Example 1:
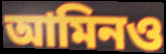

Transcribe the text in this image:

আমিনও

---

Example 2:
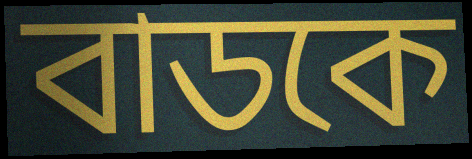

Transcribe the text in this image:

বাডকে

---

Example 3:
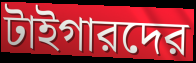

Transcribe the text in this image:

টাইগারদের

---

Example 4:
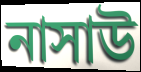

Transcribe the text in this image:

নাসাউ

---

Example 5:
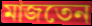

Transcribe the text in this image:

মাজতেন